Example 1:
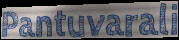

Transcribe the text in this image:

Pantuvarali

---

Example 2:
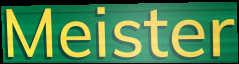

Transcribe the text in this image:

Meister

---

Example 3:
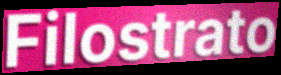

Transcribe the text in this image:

Filostrato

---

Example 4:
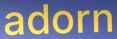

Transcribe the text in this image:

adorn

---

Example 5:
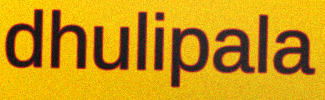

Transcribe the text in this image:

dhulipala